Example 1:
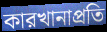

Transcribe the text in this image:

কারখানাপ্রতি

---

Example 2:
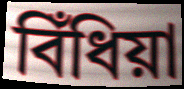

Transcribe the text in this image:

বিঁধিয়া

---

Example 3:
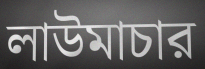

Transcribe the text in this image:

লাউমাচার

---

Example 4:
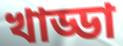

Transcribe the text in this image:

খাড্ডা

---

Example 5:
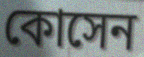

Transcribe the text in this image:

কোসেন